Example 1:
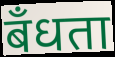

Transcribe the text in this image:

बँधता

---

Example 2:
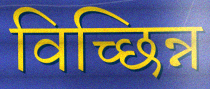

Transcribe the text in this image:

विच्छिन्न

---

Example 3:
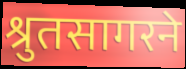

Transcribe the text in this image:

श्रुतसागरने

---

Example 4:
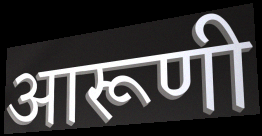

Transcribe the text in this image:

आरूणी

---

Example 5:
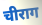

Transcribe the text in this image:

चीराग